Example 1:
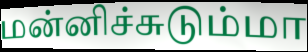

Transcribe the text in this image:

மன்னிச்சுடும்மா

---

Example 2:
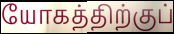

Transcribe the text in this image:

யோகத்திற்குப்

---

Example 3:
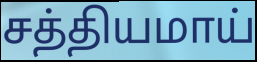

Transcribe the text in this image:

சத்தியமாய்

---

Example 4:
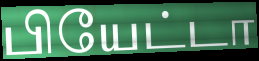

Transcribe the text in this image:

பியேட்டா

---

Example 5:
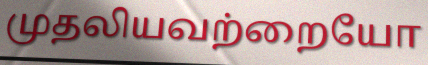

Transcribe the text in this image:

முதலியவற்றையோ